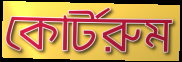
কোর্টরুম